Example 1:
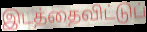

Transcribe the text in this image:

இடத்தைவிட்டுப்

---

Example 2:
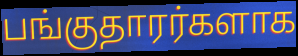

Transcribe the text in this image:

பங்குதாரர்களாக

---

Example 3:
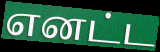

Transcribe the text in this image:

எனட்ட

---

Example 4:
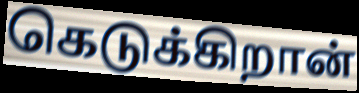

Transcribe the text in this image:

கெடுக்கிறான்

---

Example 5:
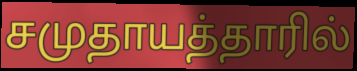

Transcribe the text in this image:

சமுதாயத்தாரில்